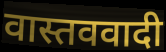
वास्तववादी